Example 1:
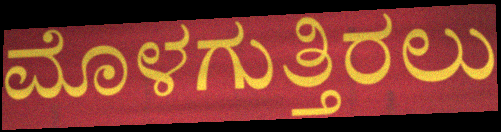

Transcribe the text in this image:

ಮೊಳಗುತ್ತಿರಲು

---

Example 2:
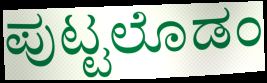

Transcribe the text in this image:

ಪುಟ್ಟಲೊಡಂ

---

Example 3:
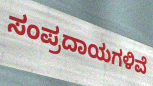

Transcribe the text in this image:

ಸಂಪ್ರದಾಯಗಳಿವೆ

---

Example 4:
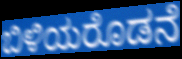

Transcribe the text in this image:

ಬಿಳಿಯರೊಡನೆ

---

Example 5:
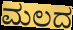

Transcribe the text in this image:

ಮಲದ